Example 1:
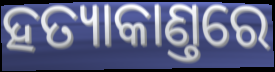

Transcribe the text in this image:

ହତ୍ୟାକାଣ୍ତରେ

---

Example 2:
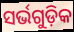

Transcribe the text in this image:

ସର୍ଭଗୁଡ଼ିକ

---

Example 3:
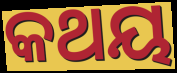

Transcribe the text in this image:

କଥୟ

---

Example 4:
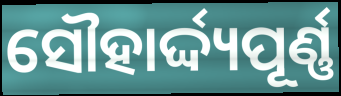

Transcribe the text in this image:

ସୌହାର୍ଦ୍ଦ୍ୟପୂର୍ଣ୍ଣ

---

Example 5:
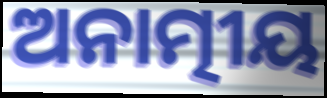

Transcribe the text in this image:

ଅନାତ୍ମୀୟ